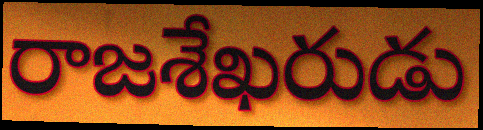
రాజశేఖరుడు